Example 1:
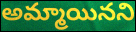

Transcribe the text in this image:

అమ్మాయినని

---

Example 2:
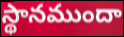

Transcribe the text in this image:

స్థానముందా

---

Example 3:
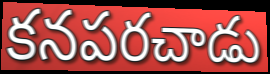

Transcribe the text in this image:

కనపరచాడు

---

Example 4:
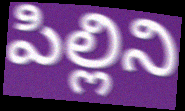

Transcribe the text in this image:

పిల్లిని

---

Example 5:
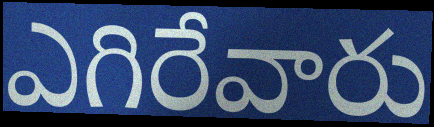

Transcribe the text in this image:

ఎగిరేవారు